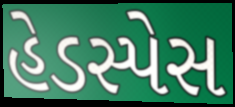
હેડસ્પેસ